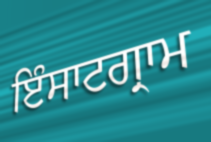
ਇੰਸਾਟਗ੍ਰਾਮ